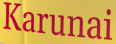
Karunai